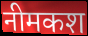
नीमकश